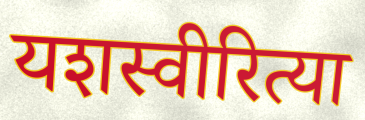
यशस्वीरित्या